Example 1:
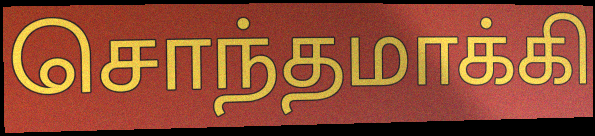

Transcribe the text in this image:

சொந்தமாக்கி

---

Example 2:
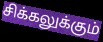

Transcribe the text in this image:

சிக்கலுக்கும்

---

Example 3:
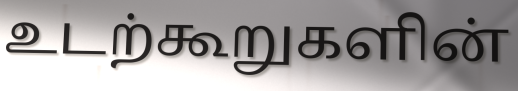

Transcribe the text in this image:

உடற்கூறுகளின்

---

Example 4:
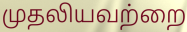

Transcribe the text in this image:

முதலியவற்றை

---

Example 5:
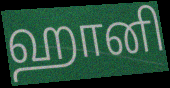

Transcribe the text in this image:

ஹானி